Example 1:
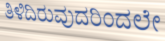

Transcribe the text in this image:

ತಿಳಿದಿರುವುದರಿಂದಲೇ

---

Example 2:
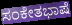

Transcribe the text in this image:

ಸಂಕೇತಭಾಷೆ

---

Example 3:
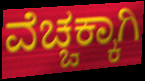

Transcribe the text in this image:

ವೆಚ್ಚಕ್ಕಾಗಿ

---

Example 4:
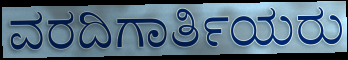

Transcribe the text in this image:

ವರದಿಗಾರ್ತಿಯರು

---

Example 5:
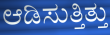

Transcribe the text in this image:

ಆಡಿಸುತ್ತಿತ್ತು